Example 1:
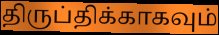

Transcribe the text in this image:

திருப்திக்காகவும்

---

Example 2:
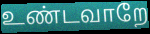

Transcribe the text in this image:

உண்டவாறே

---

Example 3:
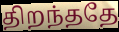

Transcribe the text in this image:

திறந்ததே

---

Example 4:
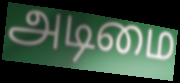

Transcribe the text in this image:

அடிமை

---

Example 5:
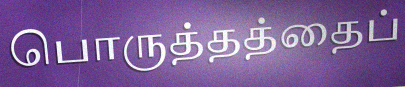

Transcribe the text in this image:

பொருத்தத்தைப்